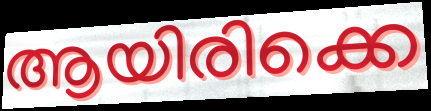
ആയിരിക്കെ